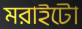
মরাইটো